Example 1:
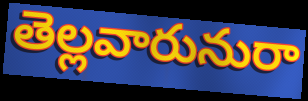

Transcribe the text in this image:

తెల్లవారునురా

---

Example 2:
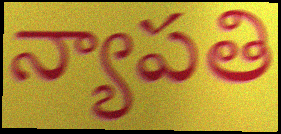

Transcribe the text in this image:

న్యాపతి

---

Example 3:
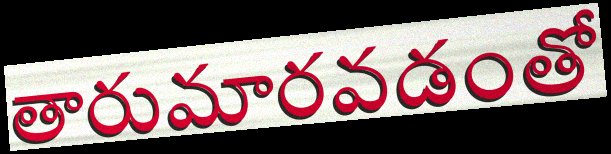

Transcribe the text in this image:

తారుమారవడంతో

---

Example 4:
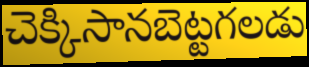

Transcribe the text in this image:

చెక్కిసానబెట్టగలడు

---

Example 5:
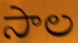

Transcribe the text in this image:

సాల